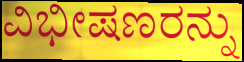
ವಿಭೀಷಣರನ್ನು